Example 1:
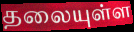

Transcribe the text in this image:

தலையுள்ள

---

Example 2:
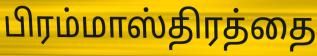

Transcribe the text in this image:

பிரம்மாஸ்திரத்தை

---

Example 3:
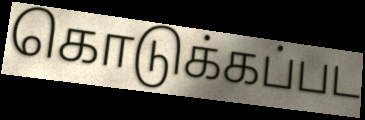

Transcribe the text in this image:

கொடுக்கப்பட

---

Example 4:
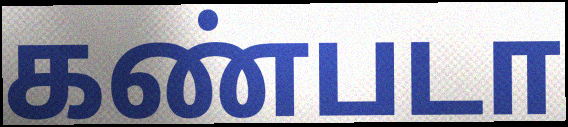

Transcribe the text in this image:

கண்படா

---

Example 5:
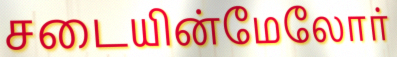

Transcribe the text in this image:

சடையின்மேலோர்